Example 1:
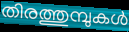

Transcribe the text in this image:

തിരത്തുമ്പുകൾ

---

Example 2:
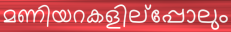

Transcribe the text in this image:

മണിയറകളില്പ്പോലും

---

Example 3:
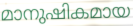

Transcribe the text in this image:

മാനുഷികമായ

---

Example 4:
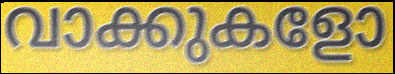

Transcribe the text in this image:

വാക്കുകളോ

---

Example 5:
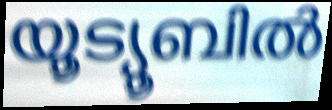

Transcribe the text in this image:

യൂട്യൂബിൽ